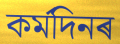
কৰ্মদিনৰ